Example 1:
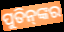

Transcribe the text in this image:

ପୁତିନ୍‌ଙ୍କର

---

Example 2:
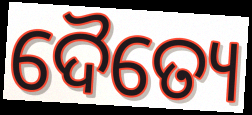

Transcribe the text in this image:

ଦୈତ୍ୟେ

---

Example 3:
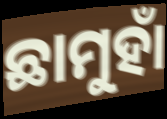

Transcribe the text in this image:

ଛାମୁହାଁ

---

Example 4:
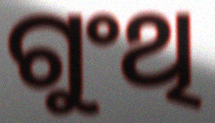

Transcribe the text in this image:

ଗୁଂଥି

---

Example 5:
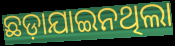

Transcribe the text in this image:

ଛଡ଼ାଯାଇନଥିଲା